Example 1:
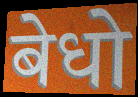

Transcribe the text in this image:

बेधो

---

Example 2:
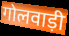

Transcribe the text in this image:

गोलवाड़ी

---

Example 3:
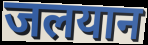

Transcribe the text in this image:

जलयान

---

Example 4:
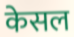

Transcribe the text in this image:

केसल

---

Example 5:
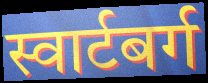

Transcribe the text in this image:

स्वार्टबर्ग